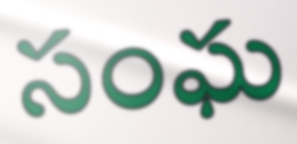
సంఘ